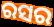
ରସର